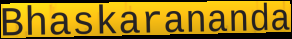
Bhaskarananda